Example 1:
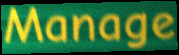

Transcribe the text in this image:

Manage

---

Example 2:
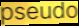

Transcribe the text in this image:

pseudo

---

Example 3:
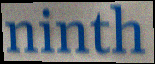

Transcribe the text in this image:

ninth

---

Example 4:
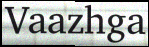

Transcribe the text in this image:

Vaazhga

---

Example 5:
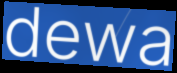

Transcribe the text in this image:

dewa